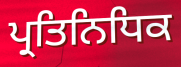
ਪ੍ਰਤਿਨਿਧਿਕ